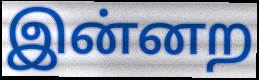
இன்னற